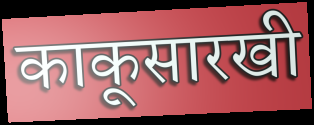
काकूसारखी